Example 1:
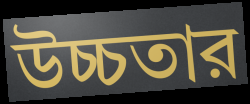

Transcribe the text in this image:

উচ্চতার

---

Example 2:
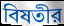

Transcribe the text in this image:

বিষতীর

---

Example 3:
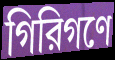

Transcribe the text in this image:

গিরিগণে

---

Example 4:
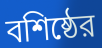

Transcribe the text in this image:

বশিষ্ঠের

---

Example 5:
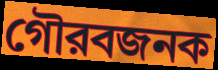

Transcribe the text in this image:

গৌরবজনক